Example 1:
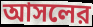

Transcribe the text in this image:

আসলের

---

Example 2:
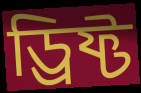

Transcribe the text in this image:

ড্রিফ্ট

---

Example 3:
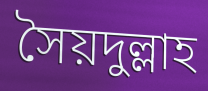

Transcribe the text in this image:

সৈয়দুল্লাহ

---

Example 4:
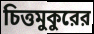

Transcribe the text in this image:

চিত্তমুকুরের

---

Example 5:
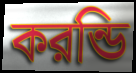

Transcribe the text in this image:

করন্ডি